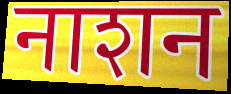
नाशन